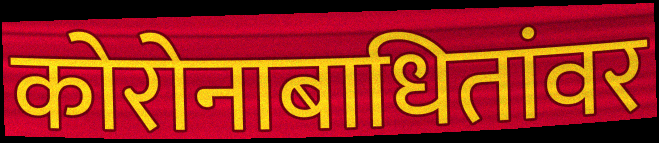
कोरोनाबाधितांवर